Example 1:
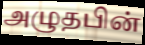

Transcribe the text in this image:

அழுதபின்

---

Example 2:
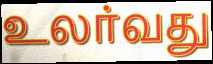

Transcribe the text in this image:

உலர்வது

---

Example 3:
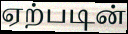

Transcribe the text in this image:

ஏற்படின்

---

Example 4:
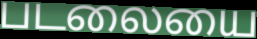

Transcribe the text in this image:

படலையை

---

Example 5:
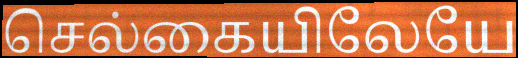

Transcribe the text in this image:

செல்கையிலேயே